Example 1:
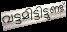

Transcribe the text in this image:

വട്ടമിട്ടിട്ടുണ്ട്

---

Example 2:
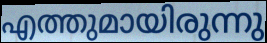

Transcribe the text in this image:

എത്തുമായിരുന്നു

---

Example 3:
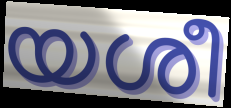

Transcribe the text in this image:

യശീ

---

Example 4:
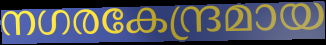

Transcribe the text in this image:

നഗരകേന്ദ്രമായ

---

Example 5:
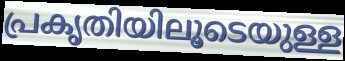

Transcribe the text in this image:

പ്രകൃതിയിലൂടെയുള്ള